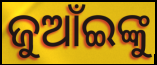
ଜୁଆଁଇଙ୍କୁ